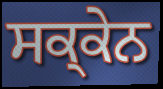
ਸਕ੍ਕੇਨ